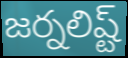
జర్నలిష్ట్